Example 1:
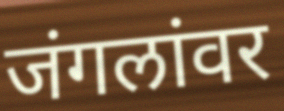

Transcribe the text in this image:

जंगलांवर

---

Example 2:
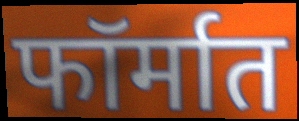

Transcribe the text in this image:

फॉर्मात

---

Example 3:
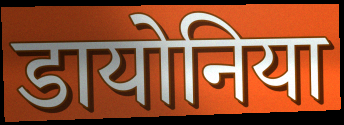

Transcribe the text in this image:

डायोनिया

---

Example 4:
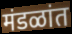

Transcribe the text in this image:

मंडळांत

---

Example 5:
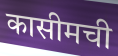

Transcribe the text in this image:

कासीमची